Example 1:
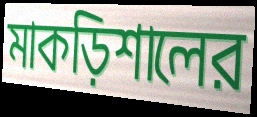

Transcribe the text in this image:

মাকড়িশালের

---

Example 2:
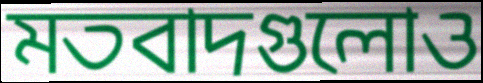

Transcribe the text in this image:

মতবাদগুলোও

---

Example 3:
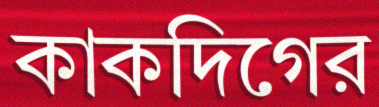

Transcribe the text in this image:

কাকদিগের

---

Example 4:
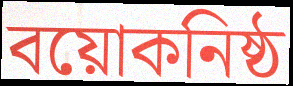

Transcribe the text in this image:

বয়োকনিষ্ঠ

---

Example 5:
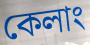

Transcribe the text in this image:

কেলাং